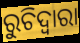
ରୁଚିଦ୍ୱାରା